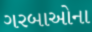
ગરબાઓના